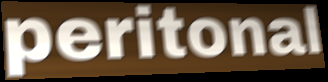
peritonal